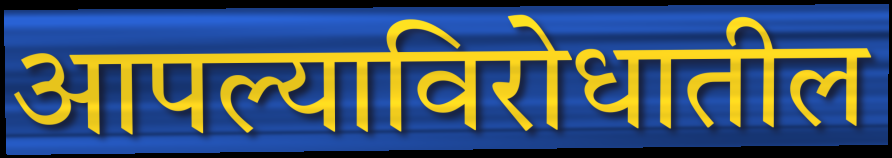
आपल्याविरोधातील